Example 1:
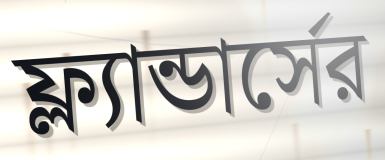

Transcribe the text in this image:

ফ্ল্যান্ডার্সের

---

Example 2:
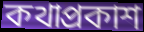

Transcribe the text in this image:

কথাপ্রকাশ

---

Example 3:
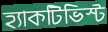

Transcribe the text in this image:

হ্যাকটিভিস্ট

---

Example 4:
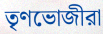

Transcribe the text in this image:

তৃণভোজীরা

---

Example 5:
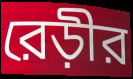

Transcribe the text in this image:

রেড়ীর